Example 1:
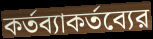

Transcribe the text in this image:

কর্তব্যাকর্তব্যের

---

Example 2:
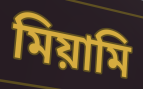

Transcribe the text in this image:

মিয়ামি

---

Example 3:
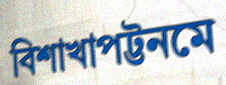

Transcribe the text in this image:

বিশাখাপট্টনমে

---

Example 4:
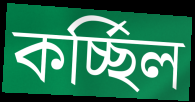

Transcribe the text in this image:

কর্চ্ছিল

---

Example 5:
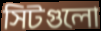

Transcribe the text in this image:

সিটগুলো